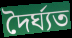
দৈৰ্ঘ্যত